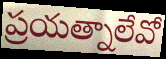
ప్రయత్నాలేవో